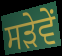
ਸੜੇਵੇਂ